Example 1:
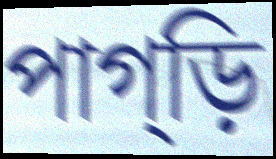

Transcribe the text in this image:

পাগ্ড়ি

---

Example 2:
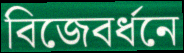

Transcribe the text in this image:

বিজেবর্ধনে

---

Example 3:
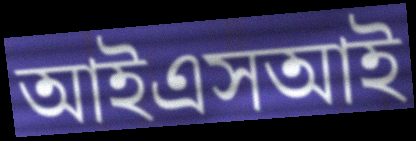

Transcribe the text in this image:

আইএসআই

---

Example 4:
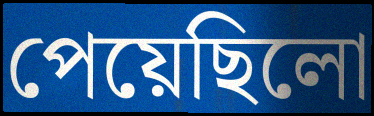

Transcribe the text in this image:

পেয়েছিলো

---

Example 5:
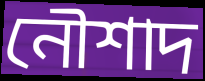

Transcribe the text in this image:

নৌশাদ